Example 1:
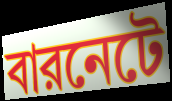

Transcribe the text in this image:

বারনেটে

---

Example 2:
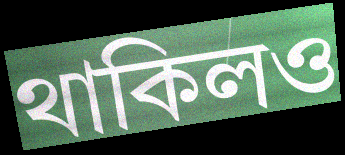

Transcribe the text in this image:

থাকিলও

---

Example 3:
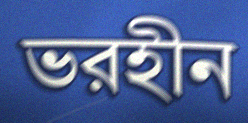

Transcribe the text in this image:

ভরহীন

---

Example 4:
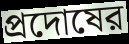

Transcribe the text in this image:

প্রদোষের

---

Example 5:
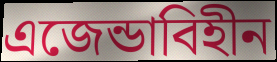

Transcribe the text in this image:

এজেন্ডাবিহীন